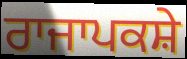
ਰਾਜਾਪਕਸ਼ੇ